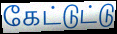
கேட்டுட்டு